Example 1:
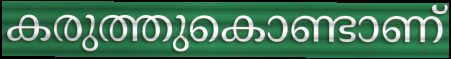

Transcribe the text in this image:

കരുത്തുകൊണ്ടാണ്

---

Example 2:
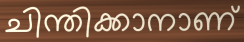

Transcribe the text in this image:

ചിന്തിക്കാനാണ്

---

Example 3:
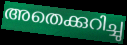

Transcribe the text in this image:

അതെക്കുറിച്ചു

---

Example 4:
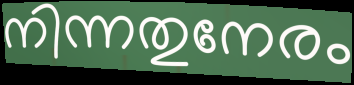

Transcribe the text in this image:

നിന്നതുനേരം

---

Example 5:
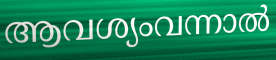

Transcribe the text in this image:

ആവശ്യംവന്നാൽ